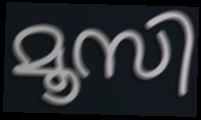
മൂസി